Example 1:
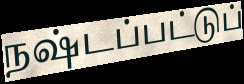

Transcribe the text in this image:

நஷ்டப்பட்டுப்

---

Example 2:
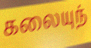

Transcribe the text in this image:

கலையுந்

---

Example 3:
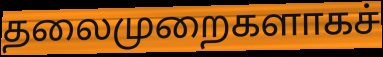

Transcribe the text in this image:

தலைமுறைகளாகச்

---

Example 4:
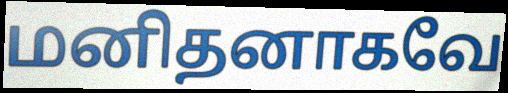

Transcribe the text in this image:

மனிதனாகவே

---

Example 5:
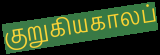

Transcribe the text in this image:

குறுகியகாலப்